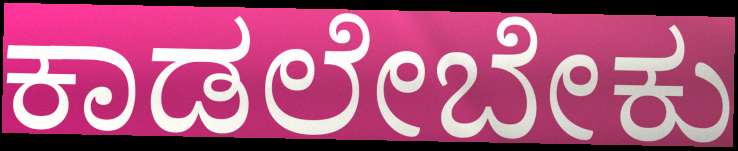
ಕಾಡಲೇಬೇಕು